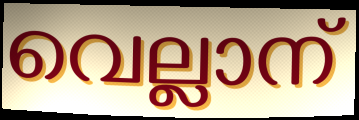
വെല്ലാന്